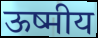
ऊष्मीय